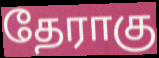
தேராகு